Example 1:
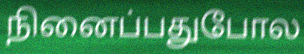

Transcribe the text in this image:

நினைப்பதுபோல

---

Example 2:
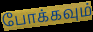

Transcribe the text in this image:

போக்கவும்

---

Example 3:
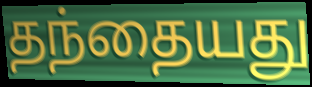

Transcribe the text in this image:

தந்தையது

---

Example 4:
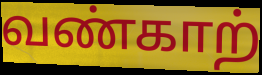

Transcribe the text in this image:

வண்காற்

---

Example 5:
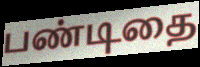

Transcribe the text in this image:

பண்டிதை